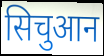
सिचुआन